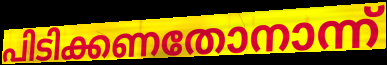
പിടിക്കണതോനാന്ന്